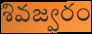
శివజ్వరం